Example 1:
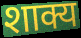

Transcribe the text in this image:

शाक्य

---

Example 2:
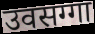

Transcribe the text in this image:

उवसग्गा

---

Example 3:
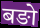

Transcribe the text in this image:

बङो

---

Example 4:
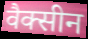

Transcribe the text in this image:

वैक्सीन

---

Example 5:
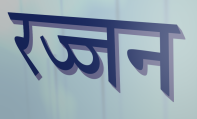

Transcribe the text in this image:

रज्जन